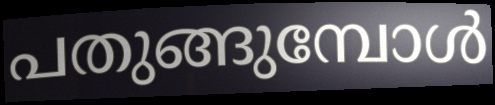
പതുങ്ങുമ്പോൾ